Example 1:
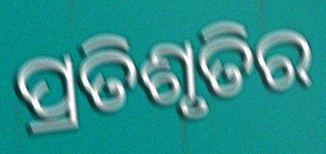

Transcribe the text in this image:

ପ୍ରତିଶୃତିର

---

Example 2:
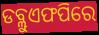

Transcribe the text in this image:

ଡବ୍ଲୁଏଫପିରେ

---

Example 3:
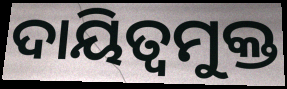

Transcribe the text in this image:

ଦାୟିତ୍ବମୁକ୍ତ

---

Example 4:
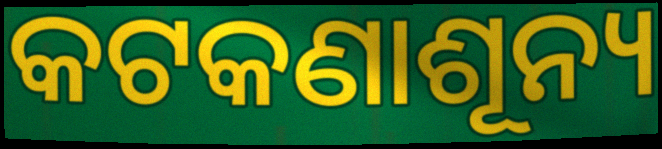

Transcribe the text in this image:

କଟକଣାଶୂନ୍ୟ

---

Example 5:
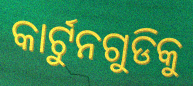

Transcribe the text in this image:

କାର୍ଟୁନଗୁଡିକୁ